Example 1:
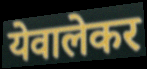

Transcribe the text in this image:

येवालेकर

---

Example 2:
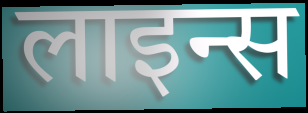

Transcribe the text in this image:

लाइन्स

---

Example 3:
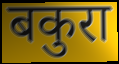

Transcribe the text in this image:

बकुरा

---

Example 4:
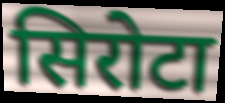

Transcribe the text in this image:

सिरोटा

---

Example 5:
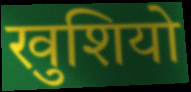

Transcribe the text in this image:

खुशियो